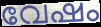
വേഷം